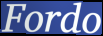
Fordo